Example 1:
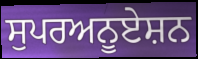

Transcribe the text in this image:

ਸੁਪਰਅਨੂਏਸ਼ਨ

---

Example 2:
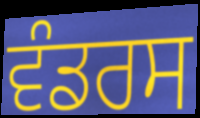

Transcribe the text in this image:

ਵੰਡਰਸ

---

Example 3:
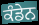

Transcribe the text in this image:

ਕੰਡੇਨ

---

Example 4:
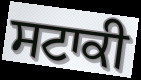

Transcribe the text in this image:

ਸਟਾਕੀ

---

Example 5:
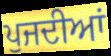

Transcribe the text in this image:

ਪੁਜਦੀਆਂ